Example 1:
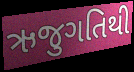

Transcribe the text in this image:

ઋજુગતિથી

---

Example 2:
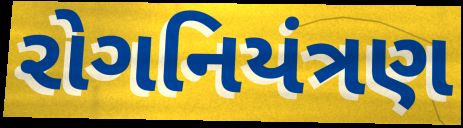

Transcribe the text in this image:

રોગનિયંત્રણ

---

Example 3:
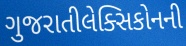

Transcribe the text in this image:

ગુજરાતીલેક્સિકોનની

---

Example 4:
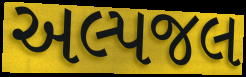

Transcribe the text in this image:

અલ્પજલ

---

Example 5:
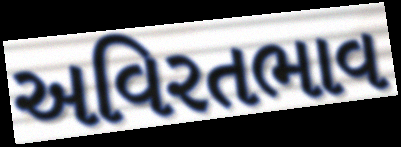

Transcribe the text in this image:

અવિરતભાવ